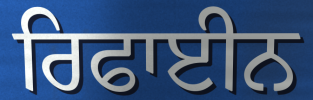
ਰਿਫਾਈਨ